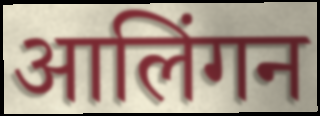
आलिंगन